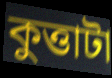
কুত্তাটা